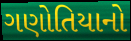
ગણોતિયાનો